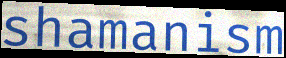
shamanism